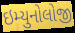
ઇમ્યુનોલોજી